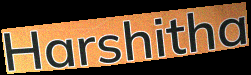
Harshitha